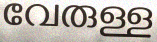
വേരുള്ള